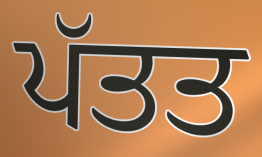
ਪੱਤਤ